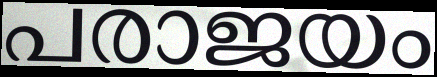
പരാജയം